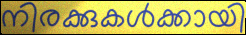
നിരക്കുകൾക്കായി